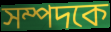
সম্পদকে